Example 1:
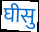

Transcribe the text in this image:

घीसु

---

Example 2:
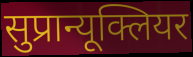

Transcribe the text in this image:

सुप्रान्यूक्लियर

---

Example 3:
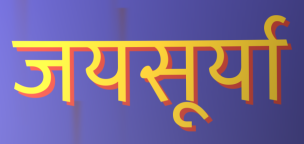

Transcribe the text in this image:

जयसूर्या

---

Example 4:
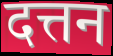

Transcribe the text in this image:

दत्तन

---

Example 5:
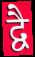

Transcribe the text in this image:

द्वै